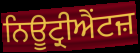
ਨਿਊਟ੍ਰੀਐਂਟਜ਼